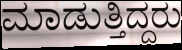
ಮಾಡುತ್ತಿದ್ದರು